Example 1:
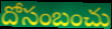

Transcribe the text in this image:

దోసంబంచు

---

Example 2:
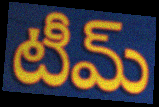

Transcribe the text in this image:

టీమ్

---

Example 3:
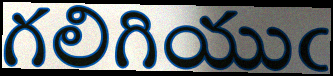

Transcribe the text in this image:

గలిగియుఁ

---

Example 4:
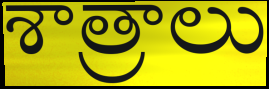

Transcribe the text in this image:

శాత్రాలు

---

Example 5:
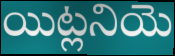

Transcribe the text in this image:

యిట్లనియె